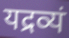
यद्रव्यं